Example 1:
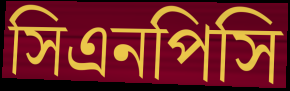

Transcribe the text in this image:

সিএনপিসি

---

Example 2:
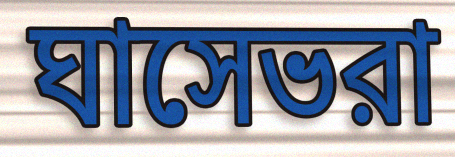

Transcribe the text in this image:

ঘাসেভরা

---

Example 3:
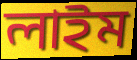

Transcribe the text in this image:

লাইম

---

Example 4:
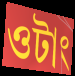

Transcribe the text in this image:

ওটাং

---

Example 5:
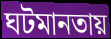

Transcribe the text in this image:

ঘটমানতায়